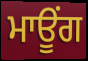
ਮਾਊਂਗ